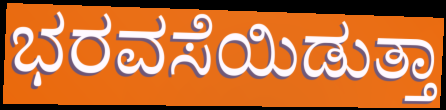
ಭರವಸೆಯಿಡುತ್ತಾ